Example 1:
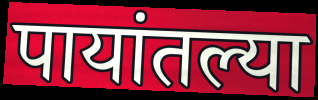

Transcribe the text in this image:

पायांतल्या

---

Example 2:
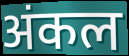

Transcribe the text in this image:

अंकल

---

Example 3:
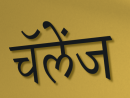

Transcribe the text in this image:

चॅलेंज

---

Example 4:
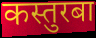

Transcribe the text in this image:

कस्तुरबा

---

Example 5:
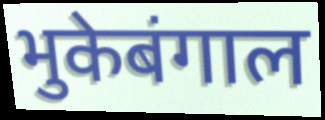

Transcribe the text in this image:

भुकेबंगाल